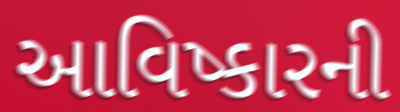
આવિષ્કારની